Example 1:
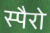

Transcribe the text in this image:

स्पैरो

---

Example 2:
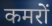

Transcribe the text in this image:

कमरों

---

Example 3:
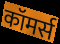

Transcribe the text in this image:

कॉमर्स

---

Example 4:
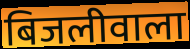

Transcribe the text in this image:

बिजलीवाला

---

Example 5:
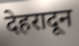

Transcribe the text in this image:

देहरादून